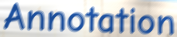
Annotation